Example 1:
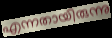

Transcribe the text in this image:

എന്നതായിരുന്നു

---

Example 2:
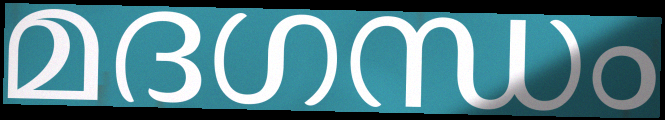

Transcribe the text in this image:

മദഗന്ധം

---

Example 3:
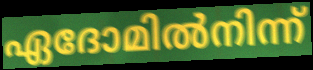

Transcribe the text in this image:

ഏദോമിൽനിന്ന്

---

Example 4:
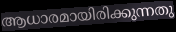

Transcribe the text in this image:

ആധാരമായിരിക്കുന്നതു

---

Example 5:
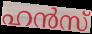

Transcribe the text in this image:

ഹൻസ്